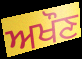
ਅਖੌਣ